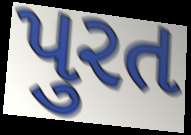
પુરત